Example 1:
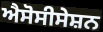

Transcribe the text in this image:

ਐਸੋਸੀਸੇਸ਼ਨ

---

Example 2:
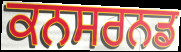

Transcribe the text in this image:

ਕਨਸਰਨਡ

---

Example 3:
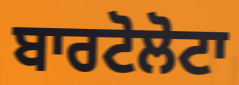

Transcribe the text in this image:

ਬਾਰਟੋਲੋਟਾ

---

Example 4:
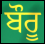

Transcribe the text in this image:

ਬੌਰੂ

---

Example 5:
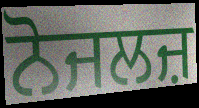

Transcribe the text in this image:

ਨੋਜਲਜ਼